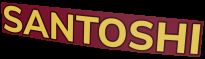
SANTOSHI